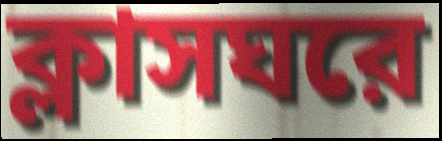
ক্লাসঘরে